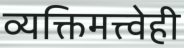
व्यक्तिमत्त्वेही